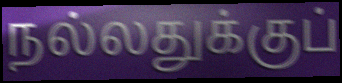
நல்லதுக்குப்